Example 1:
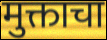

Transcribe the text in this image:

मुक्ताचा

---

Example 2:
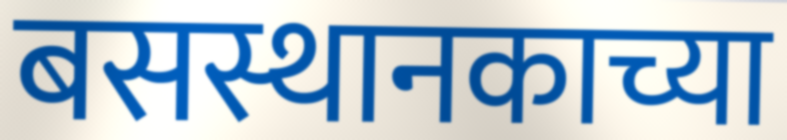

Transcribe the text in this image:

बसस्थानकाच्या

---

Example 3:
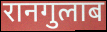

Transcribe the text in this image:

रानगुलाब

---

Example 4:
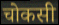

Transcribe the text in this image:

चोकसी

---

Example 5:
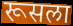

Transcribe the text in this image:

रूसला